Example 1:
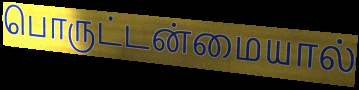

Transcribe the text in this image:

பொருட்டன்மையால்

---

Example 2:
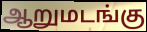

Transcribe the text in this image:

ஆறுமடங்கு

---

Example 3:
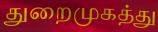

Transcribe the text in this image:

துறைமுகத்து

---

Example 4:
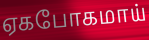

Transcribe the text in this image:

ஏகபோகமாய்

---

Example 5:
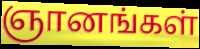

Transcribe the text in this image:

ஞானங்கள்